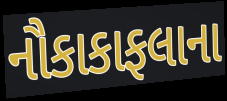
નૌકાકાફલાના